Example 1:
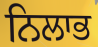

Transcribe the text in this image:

ਨਿਲਾਭ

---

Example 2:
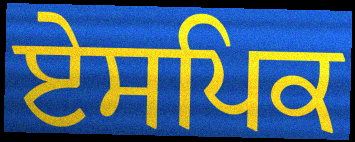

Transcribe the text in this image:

ਏਸਪਿਕ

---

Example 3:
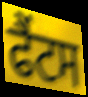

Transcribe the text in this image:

ਫੈਂਟਸ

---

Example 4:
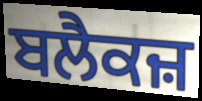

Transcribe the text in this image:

ਬਲੈਕਜ਼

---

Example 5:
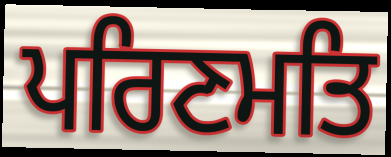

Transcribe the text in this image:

ਪਰਿਣਮਤਿ